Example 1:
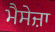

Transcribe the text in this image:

ਮੈਸੇਜ਼ਾ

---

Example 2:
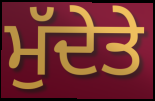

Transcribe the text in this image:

ਮੁੱਦੇਤੇ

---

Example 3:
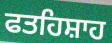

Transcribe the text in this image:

ਫਤਹਿਸ਼ਾਹ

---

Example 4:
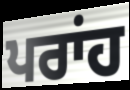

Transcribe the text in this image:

ਪਰਾਂਹ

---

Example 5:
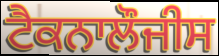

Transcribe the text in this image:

ਟੈਕਨਾਲੌਜੀਸ